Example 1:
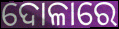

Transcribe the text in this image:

ଦୋଳାରେ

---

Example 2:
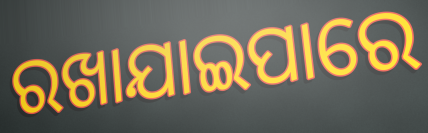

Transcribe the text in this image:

ରଖାଯାଇପାରେ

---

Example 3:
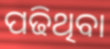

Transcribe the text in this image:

ପଢିଥିବା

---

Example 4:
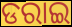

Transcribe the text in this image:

ଡରାଇ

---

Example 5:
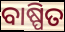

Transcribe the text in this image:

ବାଷ୍ପିତ